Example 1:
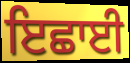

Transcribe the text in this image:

ਇਛਾਈ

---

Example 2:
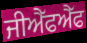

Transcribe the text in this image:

ਜੀਐੱਫਐੱਫ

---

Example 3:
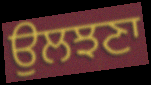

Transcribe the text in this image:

ਉਲਝਣਾ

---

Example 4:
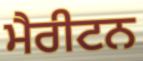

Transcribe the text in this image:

ਮੈਰੀਟਨ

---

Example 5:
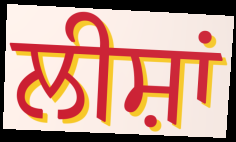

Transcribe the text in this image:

ਲੀਸ਼ਾਂ